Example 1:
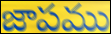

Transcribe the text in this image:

జాపము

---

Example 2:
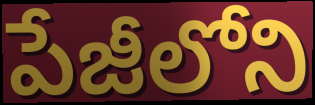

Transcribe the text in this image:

పేజీలోని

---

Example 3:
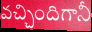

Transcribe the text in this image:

వచ్చిందిగానీ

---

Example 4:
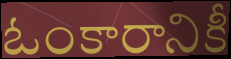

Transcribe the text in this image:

ఓంకారానికీ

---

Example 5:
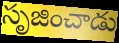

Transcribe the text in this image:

సృజించాడు